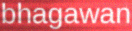
bhagawan